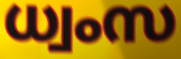
ധ്വംസ